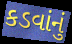
કડવાંનું